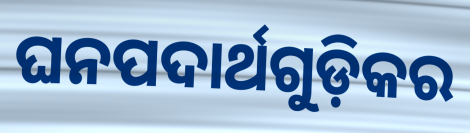
ଘନପଦାର୍ଥଗୁଡ଼ିକର